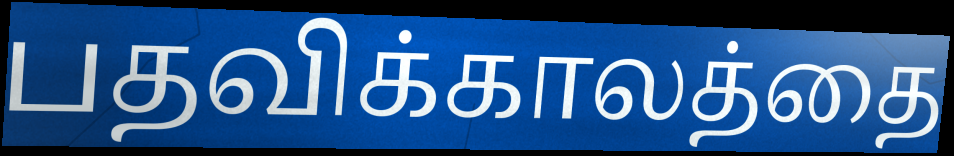
பதவிக்காலத்தை